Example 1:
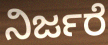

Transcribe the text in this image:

ನಿರ್ಜರೆ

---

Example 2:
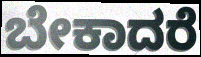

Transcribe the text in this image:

ಬೇಕಾದರೆ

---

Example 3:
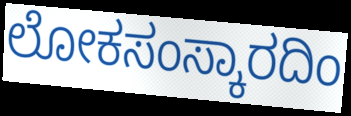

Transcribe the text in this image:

ಲೋಕಸಂಸ್ಕಾರದಿಂ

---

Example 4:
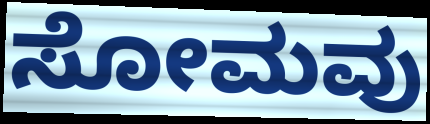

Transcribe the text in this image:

ಸೋಮವು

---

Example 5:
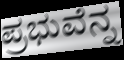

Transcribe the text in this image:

ಪ್ರಭುವೆನ್ನ